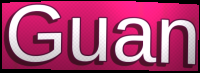
Guan